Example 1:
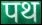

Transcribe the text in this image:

पथ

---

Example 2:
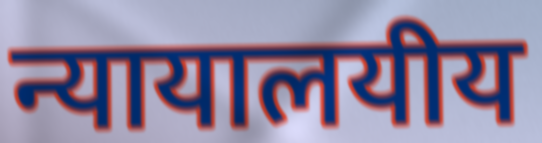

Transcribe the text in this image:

न्यायालयीय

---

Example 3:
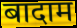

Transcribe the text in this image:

बादाम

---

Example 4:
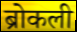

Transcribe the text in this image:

ब्रोकली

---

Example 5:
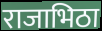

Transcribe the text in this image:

राजाभिठा